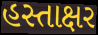
હસ્તાક્ષર